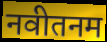
नवीतनम